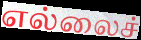
எல்லைச்